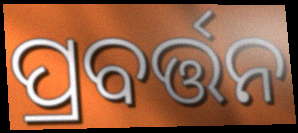
ପ୍ରବର୍ତ୍ତନ